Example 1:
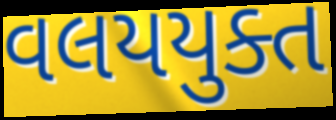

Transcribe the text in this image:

વલયયુક્ત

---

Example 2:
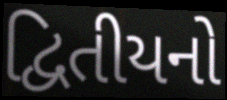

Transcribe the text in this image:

દ્વિતીયનો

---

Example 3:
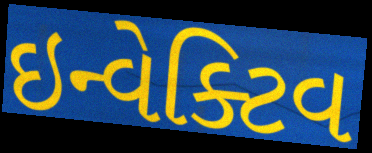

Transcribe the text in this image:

ઇન્વેક્ટિવ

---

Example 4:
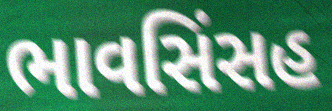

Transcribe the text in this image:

ભાવસિંસહ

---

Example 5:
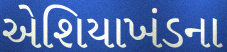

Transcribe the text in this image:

એશિયાખંડના